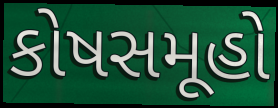
કોષસમૂહો